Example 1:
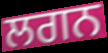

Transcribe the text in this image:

ਲਗਨ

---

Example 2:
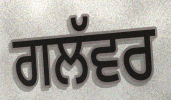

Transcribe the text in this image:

ਗਲੱਵਰ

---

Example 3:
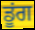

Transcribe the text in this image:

ਡੂਂਗ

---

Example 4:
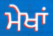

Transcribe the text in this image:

ਮੇਖਾਂ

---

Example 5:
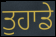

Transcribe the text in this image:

ਤੁਹਾਡੇ